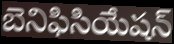
బెనిఫిసియేషన్